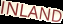
INLAND